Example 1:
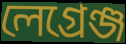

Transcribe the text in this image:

লেগ্রেঞ্জ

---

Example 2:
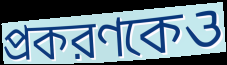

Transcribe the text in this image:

প্রকরণকেও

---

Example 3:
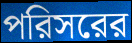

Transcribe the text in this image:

পরিসরের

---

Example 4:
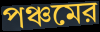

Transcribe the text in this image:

পঞ্চমের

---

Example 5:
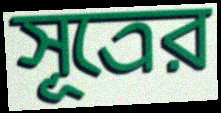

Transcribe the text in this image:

সূত্রের